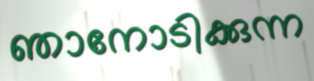
ഞാനോടിക്കുന്ന